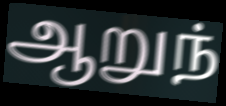
ஆறுந்